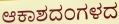
ಆಕಾಶದಂಗಳದ